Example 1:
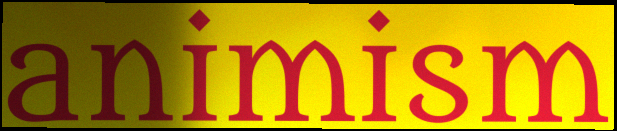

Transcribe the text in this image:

animism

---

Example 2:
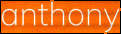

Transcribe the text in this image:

anthony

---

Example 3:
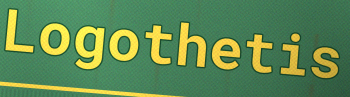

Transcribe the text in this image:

Logothetis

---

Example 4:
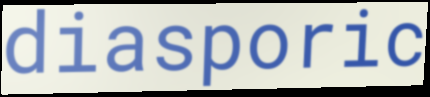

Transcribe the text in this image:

diasporic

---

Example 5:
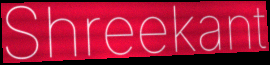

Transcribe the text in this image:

Shreekant